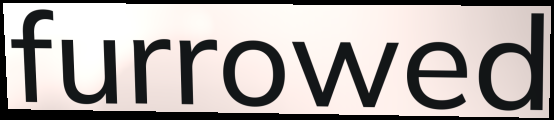
furrowed